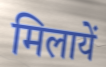
मिलायें